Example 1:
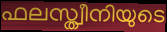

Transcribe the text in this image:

ഫലസ്ത്വീനിയുടെ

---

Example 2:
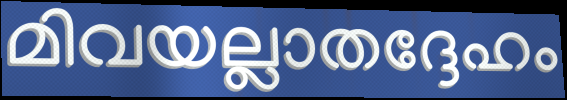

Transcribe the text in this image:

മിവയല്ലാതദ്ദേഹം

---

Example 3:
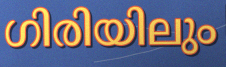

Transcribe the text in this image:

ഗിരിയിലും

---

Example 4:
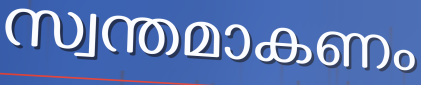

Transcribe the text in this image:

സ്വന്തമാകണം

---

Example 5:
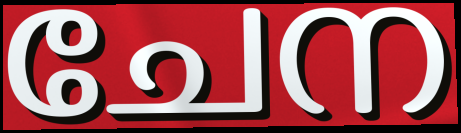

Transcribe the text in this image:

ചേന